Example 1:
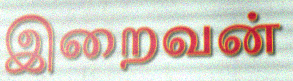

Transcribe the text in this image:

இறைவன்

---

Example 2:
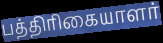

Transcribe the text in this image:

பத்திரிகையாளர்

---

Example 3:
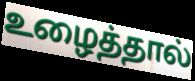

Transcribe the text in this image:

உழைத்தால்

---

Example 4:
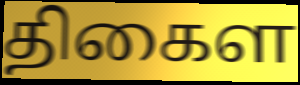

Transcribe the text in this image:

திகைள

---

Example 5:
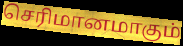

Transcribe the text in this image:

செரிமானமாகும்